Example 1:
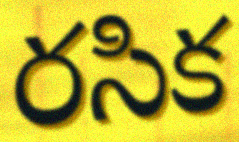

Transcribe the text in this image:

రసిక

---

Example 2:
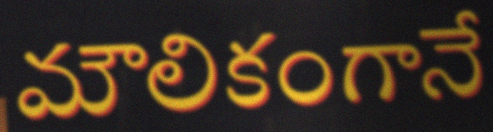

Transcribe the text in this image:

మౌలికంగానే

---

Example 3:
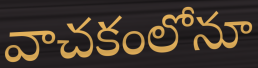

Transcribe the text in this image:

వాచకంలోనూ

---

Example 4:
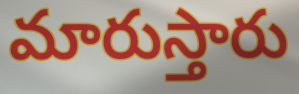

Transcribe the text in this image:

మారుస్తారు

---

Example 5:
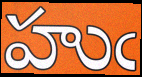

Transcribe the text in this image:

హుఁ